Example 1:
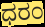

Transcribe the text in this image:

ಧರಂ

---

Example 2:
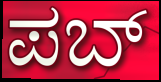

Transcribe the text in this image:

ಪಬ್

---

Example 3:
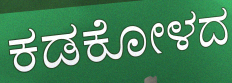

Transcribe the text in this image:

ಕಡಕೋಳದ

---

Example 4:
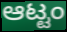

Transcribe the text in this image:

ಆಟ್ಟಂ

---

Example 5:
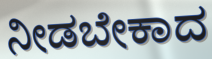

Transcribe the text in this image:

ನೀಡಬೇಕಾದ